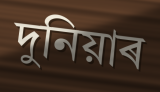
দুনিয়াৰ